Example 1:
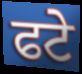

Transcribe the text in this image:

ਫਟੇ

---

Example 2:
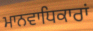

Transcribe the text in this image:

ਮਾਨਵਾਧਿਕਾਰਾਂ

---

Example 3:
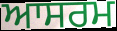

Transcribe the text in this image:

ਆਸਰਮ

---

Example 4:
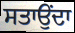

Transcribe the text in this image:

ਸਤਾਉਂਦਾ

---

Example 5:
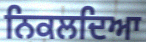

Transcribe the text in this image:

ਨਿਕਲਦਿਆ